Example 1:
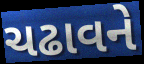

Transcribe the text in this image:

ચઢાવને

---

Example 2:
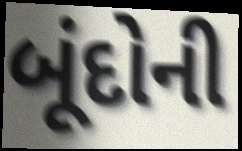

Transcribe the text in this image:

બૂંદોની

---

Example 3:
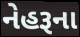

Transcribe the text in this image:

નેહરૂના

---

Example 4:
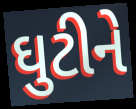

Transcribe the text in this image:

ઘુટીને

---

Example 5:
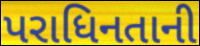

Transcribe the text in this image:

પરાધિનતાની